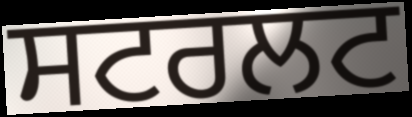
ਸਟਰਲਟ